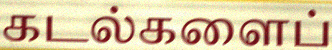
கடல்களைப்